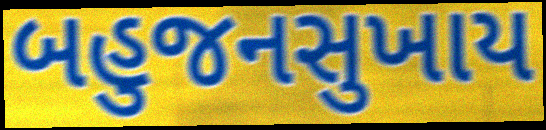
બહુજનસુખાય